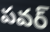
పవర్